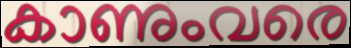
കാണുംവരെ